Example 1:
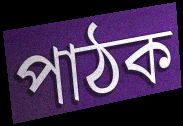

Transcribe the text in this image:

পাঠক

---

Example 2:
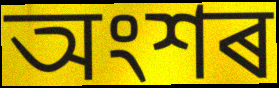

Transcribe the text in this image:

অংশৰ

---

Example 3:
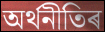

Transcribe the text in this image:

অৰ্থনীতিৰ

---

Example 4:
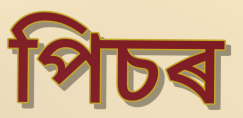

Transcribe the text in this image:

পিচৰ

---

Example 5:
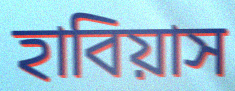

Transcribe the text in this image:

হাবিয়াস